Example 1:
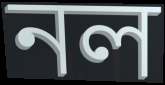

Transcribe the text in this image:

নল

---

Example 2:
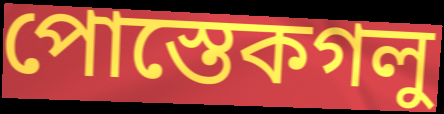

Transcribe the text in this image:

পোস্তেকগলু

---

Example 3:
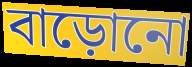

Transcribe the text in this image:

বাড়োনো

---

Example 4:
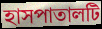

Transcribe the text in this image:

হাসপাতালটি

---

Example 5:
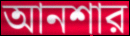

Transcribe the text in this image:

আনশার